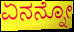
ಏನನ್ನೋ